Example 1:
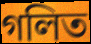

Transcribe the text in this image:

গলিত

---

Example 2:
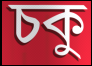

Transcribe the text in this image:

চকু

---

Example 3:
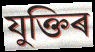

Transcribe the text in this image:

যুক্তিৰ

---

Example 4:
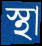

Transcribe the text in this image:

স্থা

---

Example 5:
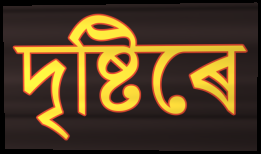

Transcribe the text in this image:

দৃষ্টিৰে